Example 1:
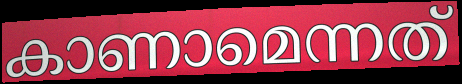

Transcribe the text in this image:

കാണാമെന്നത്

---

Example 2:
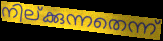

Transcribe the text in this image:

നില്ക്കുന്നതെന്ന്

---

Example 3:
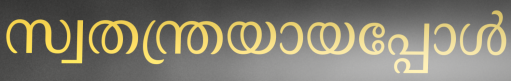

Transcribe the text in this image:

സ്വതന്ത്രയായപ്പോൾ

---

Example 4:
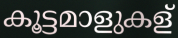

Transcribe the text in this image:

കൂട്ടമാളുകള്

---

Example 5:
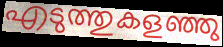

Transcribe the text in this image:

എടുത്തുകളഞ്ഞു